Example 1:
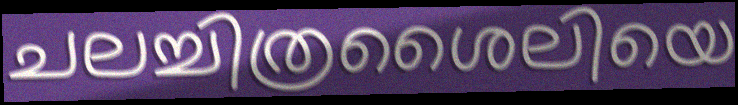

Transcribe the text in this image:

ചലച്ചിത്രശൈലിയെ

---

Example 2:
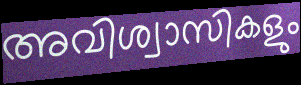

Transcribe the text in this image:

അവിശ്വാസികളും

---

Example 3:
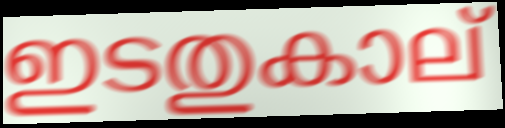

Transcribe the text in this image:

ഇടതുകാല്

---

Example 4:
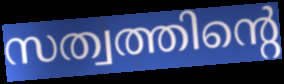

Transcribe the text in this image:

സത്വത്തിന്റെ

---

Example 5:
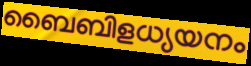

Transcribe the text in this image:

ബൈബിളധ്യയനം